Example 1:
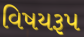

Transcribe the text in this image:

વિષયરૂપ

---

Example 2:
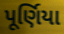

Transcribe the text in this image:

પૂર્ણિયા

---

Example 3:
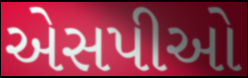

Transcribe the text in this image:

એસપીઓ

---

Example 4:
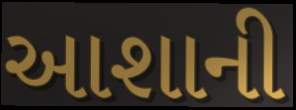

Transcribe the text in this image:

આશાની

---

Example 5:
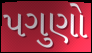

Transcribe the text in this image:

પગુણો